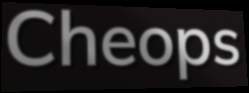
Cheops